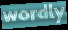
wordly